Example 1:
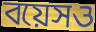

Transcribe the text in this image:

বয়েসও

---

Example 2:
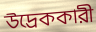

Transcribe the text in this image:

উদ্রেককারী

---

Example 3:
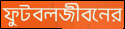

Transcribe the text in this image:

ফুটবলজীবনের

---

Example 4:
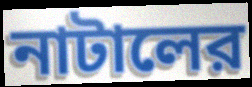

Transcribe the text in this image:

নাটালের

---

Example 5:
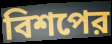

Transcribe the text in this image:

বিশপের